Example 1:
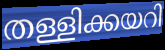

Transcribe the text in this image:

തള്ളിക്കയറി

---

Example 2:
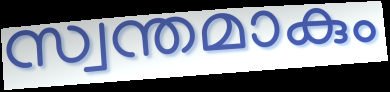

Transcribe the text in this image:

സ്വന്തമാകും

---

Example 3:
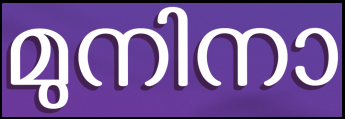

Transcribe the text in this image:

മുനിനാ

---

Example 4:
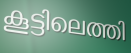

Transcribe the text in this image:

കൂട്ടിലെത്തി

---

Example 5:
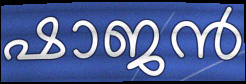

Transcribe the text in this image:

ഷാജൻ